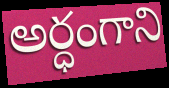
అర్ధంగాని